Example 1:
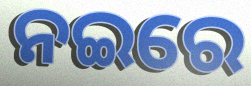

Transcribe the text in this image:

ନଇରେ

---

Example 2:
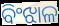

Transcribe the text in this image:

ବିଂଝାଳ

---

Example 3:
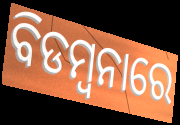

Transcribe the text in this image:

ବିଡମ୍ବନାରେ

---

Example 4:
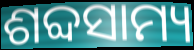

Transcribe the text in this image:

ଶବ୍ଦସାମ୍ୟ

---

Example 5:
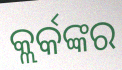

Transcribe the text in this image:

କ୍ଲର୍କଙ୍କର